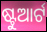
ଷ୍ଟୁଆର୍ଟ